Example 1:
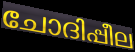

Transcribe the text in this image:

ചോദിപ്പീല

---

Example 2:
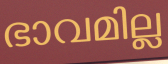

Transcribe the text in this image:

ഭാവമില്ല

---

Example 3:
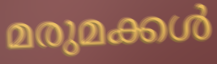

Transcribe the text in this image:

മരുമക്കൾ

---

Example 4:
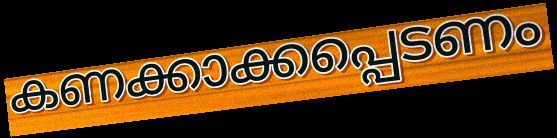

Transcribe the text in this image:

കണക്കാക്കപ്പെടണം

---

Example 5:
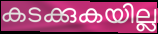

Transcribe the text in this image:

കടക്കുകയില്ല